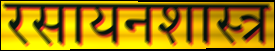
रसायनशास्त्र